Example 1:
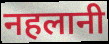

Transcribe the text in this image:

नहलानी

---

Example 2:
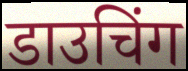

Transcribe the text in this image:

डाउचिंग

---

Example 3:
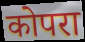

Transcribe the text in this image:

कोपरा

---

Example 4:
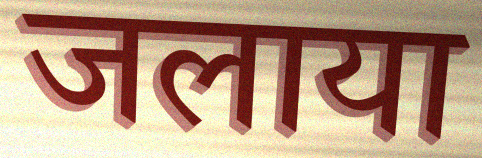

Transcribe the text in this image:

जलाया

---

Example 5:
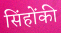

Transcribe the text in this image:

सिंहोंकी